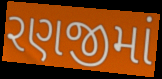
રણજીમાં